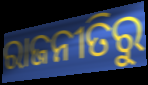
ରାଜନୀତିରୁ